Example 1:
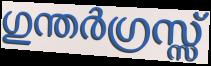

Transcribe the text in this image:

ഗുന്തർഗ്രസ്സ്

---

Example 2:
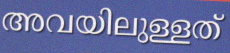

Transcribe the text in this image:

അവയിലുള്ളത്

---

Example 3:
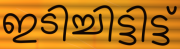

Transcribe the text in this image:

ഇടിച്ചിട്ടിട്ട്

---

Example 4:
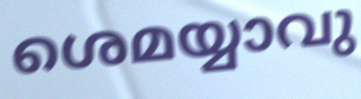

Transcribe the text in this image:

ശെമയ്യാവു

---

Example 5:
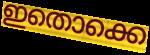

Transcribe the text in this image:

ഇതൊക്കെ